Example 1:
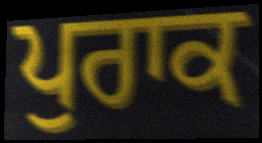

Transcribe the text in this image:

ਪੁਰਾਕ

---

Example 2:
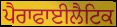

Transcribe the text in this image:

ਪੈਰਾਫਾਈਲੈਟਿਕ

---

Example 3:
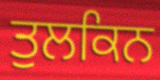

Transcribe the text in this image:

ਤੁਲਕਿਨ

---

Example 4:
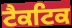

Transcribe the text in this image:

ਟੈਕਟਿਕ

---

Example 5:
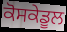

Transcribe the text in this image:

ਕੋਸਕੇਡੂਲ